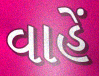
વાહેં